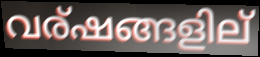
വര്ഷങ്ങളില്